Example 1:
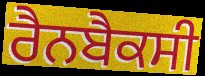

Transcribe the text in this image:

ਰੈਨਬੈਕਸੀ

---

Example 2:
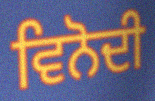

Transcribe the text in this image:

ਵਿਨੋਦੀ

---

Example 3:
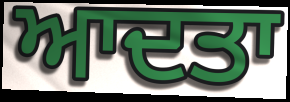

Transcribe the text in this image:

ਆਦਤਾ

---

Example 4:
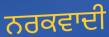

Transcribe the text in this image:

ਨਰਕਵਾਦੀ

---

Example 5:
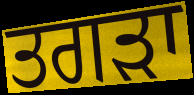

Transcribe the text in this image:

ਤਗੜਾ